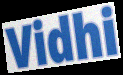
Vidhi